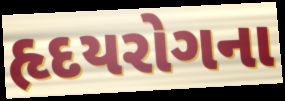
હૃદયરોગના